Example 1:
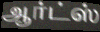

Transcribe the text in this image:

ஆர்ட்ஸ்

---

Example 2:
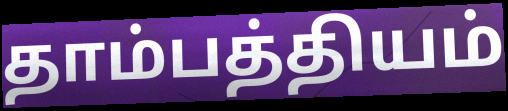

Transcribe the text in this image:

தாம்பத்தியம்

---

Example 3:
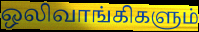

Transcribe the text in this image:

ஒலிவாங்கிகளும்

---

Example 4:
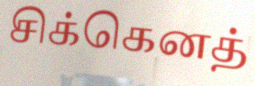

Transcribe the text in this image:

சிக்கெனத்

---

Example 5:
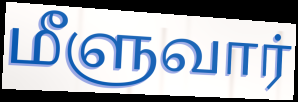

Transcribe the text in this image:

மீளுவார்